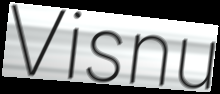
Visnu